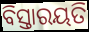
ବିସ୍ତାରୟତି